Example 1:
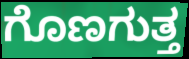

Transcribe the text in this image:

ಗೊಣಗುತ್ತ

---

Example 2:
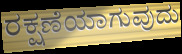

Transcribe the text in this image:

ರಕ್ಷಣೆಯಾಗುವುದು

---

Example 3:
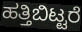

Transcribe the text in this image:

ಹತ್ತಿಬಿಟ್ಟರೆ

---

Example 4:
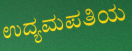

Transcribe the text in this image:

ಉದ್ಯಮಪತಿಯ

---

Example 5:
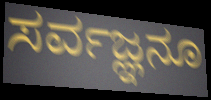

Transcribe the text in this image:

ಸರ್ವಜ್ಞನೂ